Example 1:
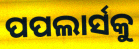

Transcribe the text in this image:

ପପଲାର୍ସକୁ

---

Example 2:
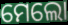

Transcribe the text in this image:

ମେଲୋ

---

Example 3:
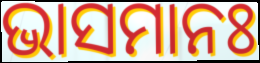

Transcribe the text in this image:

ଭାସମାନଃ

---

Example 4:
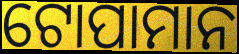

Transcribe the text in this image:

ଟୋପାମାନ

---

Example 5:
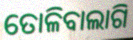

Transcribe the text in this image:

ତୋଳିବାଲାଗି